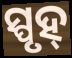
ସ୍ପୃହ୍